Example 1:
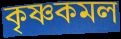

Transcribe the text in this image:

কৃষ্ণকমল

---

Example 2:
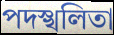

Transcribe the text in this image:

পদস্খলিতা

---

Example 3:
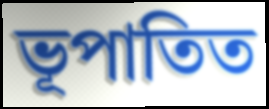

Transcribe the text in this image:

ভূপাতিত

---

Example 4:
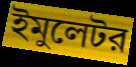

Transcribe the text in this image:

ইমুলেটর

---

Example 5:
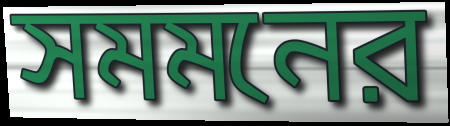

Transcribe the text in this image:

সমমনের